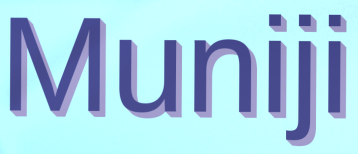
Muniji